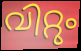
വിറ്റും